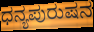
ಧನ್ಯಪುರುಷನ